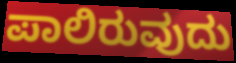
ಪಾಲಿರುವುದು